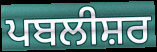
ਪਬਲੀਸ਼ਰ